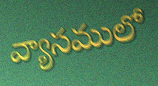
వ్యాసములో